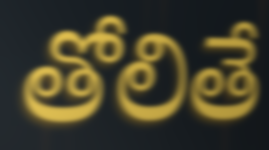
తోలితే